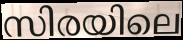
സിരയിലെ